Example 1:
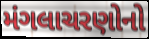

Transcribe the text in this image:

મંગલાચરણોનો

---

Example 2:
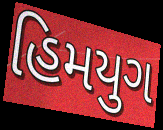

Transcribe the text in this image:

હિમયુગ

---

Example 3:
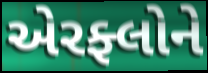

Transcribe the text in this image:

એરફ્લોને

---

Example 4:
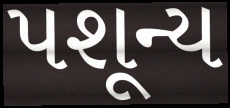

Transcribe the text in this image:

પશૂન્ય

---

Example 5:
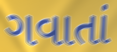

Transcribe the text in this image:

ગવાતાં